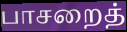
பாசறைத்